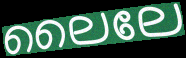
ലൈലേ